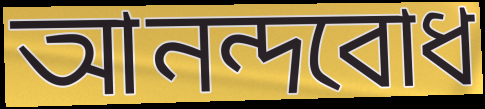
আনন্দবোধ